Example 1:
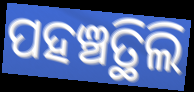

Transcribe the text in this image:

ପହଞ୍ଚତ୍ଥିଲି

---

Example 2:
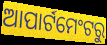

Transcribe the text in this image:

ଆପାର୍ଟମେଂଟରୁ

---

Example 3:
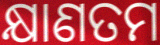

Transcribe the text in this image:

କ୍ଷାଣତମ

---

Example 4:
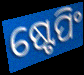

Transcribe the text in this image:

ଷ୍ଟେପିଂ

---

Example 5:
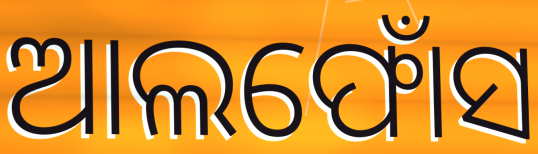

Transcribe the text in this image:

ଆଲଫୋଁସ